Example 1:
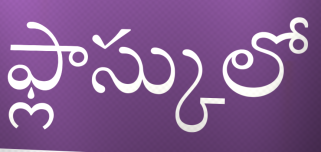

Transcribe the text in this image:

ఫ్లాస్కులో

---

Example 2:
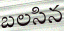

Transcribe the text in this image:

బలసిన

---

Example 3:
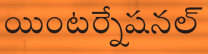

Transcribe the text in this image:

యింటర్నేషనల్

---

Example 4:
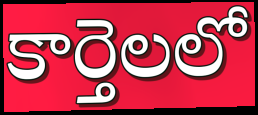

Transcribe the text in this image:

కార్తెలలో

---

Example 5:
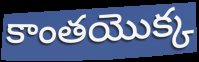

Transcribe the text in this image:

కాంతయొక్క